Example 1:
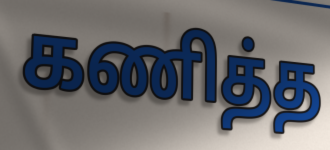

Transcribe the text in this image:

கணித்த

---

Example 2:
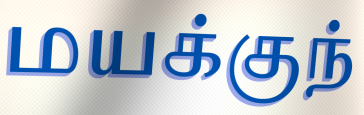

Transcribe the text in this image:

மயக்குந்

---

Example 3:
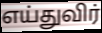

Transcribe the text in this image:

எய்துவிர்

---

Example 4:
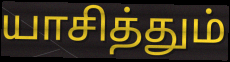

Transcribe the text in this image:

யாசித்தும்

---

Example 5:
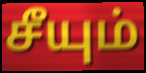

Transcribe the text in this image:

சீயும்